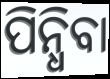
ପିନ୍ଧିବା